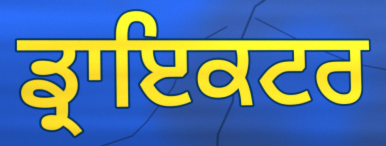
ਡ੍ਰਾਇਕਟਰ